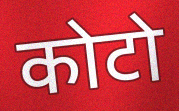
कोटो